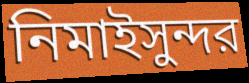
নিমাইসুন্দর